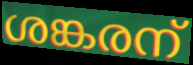
ശങ്കരന്